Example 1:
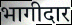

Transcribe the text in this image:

भागीदार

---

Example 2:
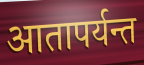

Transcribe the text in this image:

आतापर्यन्त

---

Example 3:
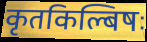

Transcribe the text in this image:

कृतकिल्बिषः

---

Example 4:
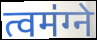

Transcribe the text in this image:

त्वम॑ग्ने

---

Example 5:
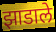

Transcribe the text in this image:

झाडाले